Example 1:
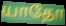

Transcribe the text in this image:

யாதோ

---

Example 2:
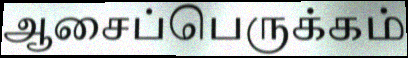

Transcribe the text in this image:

ஆசைப்பெருக்கம்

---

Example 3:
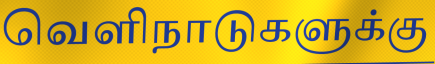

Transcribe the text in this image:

வெளிநாடுகளுக்கு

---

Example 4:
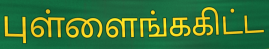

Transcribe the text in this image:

புள்ளைங்ககிட்ட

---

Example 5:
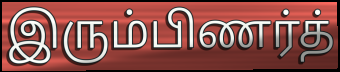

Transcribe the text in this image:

இரும்பிணர்த்